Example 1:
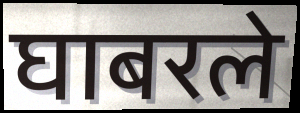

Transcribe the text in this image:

घाबरले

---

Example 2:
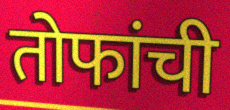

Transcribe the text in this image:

तोफांची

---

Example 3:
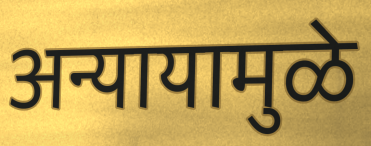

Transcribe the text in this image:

अन्यायामुळे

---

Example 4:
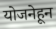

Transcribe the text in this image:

योजनेहून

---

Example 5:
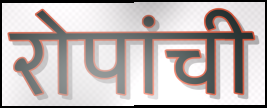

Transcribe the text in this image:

रोपांची